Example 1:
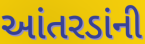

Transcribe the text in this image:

આંતરડાંની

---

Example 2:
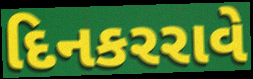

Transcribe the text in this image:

દિનકરરાવે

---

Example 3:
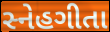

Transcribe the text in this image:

સ્નેહગીતા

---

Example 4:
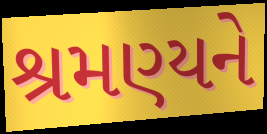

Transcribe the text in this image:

શ્રમણ્યને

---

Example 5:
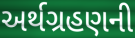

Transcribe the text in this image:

અર્થગ્રહણની